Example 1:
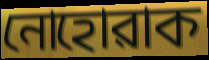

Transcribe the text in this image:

নোহোৱাক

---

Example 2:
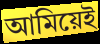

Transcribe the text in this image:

আমিয়েই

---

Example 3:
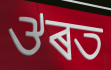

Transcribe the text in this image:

ঔৰত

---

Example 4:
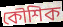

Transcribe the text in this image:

কৌশিক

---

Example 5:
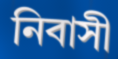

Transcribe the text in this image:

নিবাসী